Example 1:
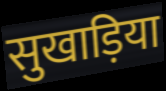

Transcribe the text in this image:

सुखाड़िया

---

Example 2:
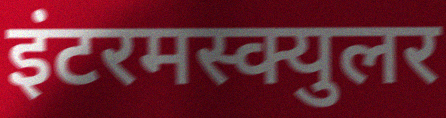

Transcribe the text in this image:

इंटरमस्क्युलर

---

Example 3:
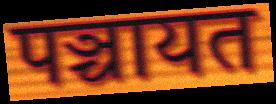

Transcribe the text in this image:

पञ्चायत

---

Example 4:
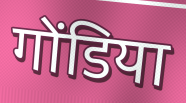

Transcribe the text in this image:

गोंडिया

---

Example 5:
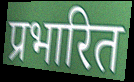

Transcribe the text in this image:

प्रभारित